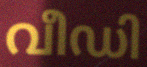
വീഡി